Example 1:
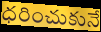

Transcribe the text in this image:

ధరించుకునే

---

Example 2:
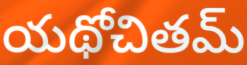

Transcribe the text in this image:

యథోచితమ్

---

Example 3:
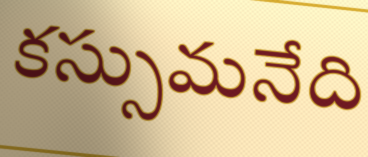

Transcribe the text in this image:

కస్సుమనేది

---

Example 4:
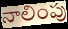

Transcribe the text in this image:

నాలింపు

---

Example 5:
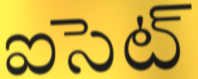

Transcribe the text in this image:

ఐసెట్